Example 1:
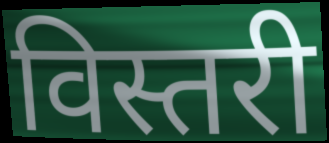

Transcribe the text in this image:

विस्तरी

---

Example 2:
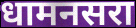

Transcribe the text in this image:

धामनसरा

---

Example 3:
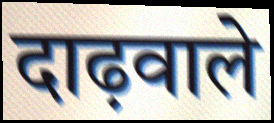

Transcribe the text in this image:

दाढ़वाले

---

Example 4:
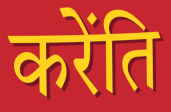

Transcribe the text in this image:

करेंति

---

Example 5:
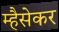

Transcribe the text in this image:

म्हैसेकर